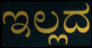
ಇಲ್ಲದ